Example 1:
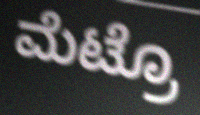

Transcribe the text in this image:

ಮೆಟ್ರೊ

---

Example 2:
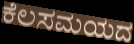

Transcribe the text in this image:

ಕೆಲಸಮಯದ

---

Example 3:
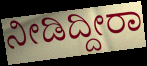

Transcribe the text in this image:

ನೀಡಿದ್ದೀರಾ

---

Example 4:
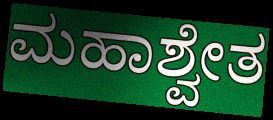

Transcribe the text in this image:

ಮಹಾಶ್ವೇತ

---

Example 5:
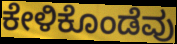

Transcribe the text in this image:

ಕೇಳಿಕೊಂಡೆವು